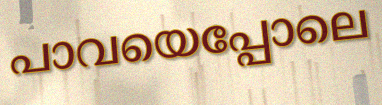
പാവയെപ്പോലെ